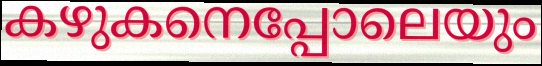
കഴുകനെപ്പോലെയും